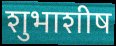
शुभाशीष